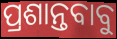
ପ୍ରଶାନ୍ତବାବୁ